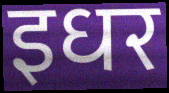
इधर